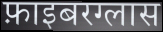
फ़ाइबरग्लास